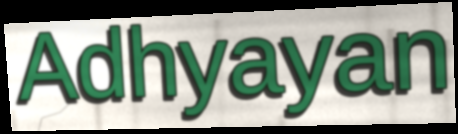
Adhyayan